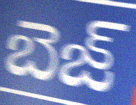
బెజ్